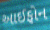
આઈફોન